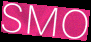
SMO